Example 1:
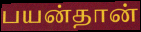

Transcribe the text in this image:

பயன்தான்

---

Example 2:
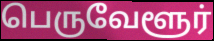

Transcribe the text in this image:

பெருவேளூர்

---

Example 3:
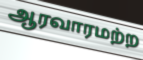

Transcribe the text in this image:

ஆரவாரமற்ற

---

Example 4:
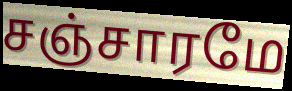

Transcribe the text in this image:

சஞ்சாரமே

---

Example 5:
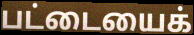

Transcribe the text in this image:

பட்டையைக்